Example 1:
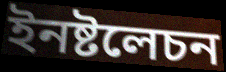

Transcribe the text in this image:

ইনষ্টলেচন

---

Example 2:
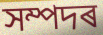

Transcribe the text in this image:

সম্পদৰ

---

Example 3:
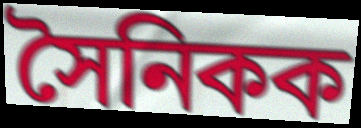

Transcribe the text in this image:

সৈনিকক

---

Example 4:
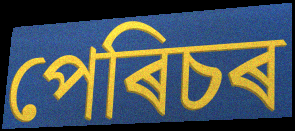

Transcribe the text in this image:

পেৰিচৰ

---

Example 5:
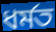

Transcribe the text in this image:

ধৰ্মত